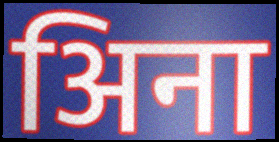
अिना